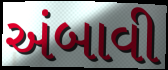
અંબાવી